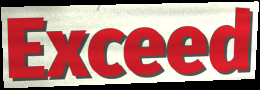
Exceed